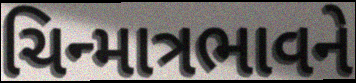
ચિન્માત્રભાવને